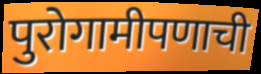
पुरोगामीपणाची